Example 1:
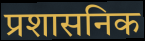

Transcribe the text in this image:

प्रशासनिक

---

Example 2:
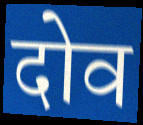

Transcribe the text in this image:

दोव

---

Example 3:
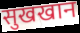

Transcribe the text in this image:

सुखखान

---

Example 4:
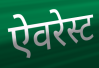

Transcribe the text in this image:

ऐवरेस्ट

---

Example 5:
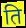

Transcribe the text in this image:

ति